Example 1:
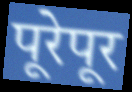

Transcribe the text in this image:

पूरेपूर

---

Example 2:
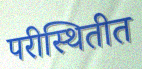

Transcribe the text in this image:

परीस्थितीत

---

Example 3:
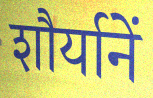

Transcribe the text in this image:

शौर्यानें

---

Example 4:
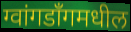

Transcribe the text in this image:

ग्वांगडाँगमधील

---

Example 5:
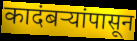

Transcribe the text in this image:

कादंबऱ्यांपासून